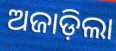
ଅଜାଡ଼ିଲା